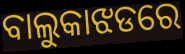
ବାଲୁକାଝଡରେ